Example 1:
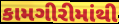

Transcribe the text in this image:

કામગીરીમાંથી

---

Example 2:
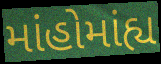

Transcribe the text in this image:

માંહોમાંહ્ય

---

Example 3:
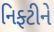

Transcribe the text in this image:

નિફ્ટીને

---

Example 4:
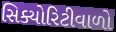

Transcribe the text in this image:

સિક્યોરિટીવાળો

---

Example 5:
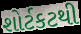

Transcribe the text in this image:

શોર્ટકટથી